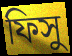
ফিসু